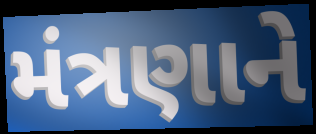
મંત્રણાને